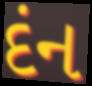
દંન